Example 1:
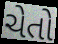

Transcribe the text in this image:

ચેતો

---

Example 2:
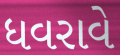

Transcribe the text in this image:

ધવરાવે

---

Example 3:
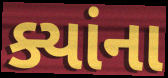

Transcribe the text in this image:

ક્યાંના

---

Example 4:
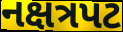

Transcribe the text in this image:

નક્ષત્રપટ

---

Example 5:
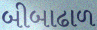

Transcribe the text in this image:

બીબાઢાળ